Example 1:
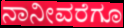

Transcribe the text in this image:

ನಾನೀವರೆಗೂ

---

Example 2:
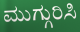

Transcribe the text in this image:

ಮುಗ್ಗುರಿಸಿ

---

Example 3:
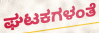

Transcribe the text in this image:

ಘಟಕಗಳಂತೆ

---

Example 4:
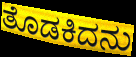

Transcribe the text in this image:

ತೊಡಕಿದನು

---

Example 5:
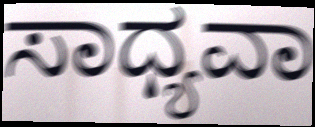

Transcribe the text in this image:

ಸಾಧ್ಯವಾ